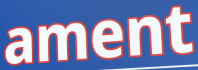
ament